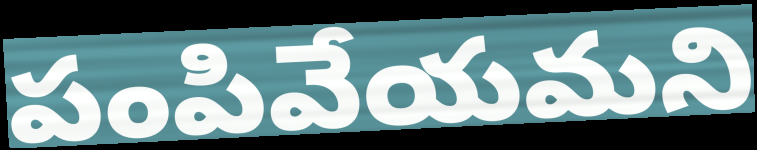
పంపివేయమని